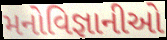
મનોવિજ્ઞાનીઓ